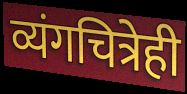
व्यंगचित्रेही